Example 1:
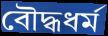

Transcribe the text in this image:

বৌদ্ধধর্ম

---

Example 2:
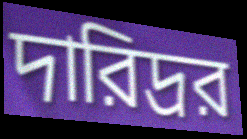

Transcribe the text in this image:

দারিদ্রর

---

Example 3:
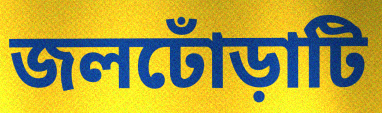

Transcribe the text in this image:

জলঢোঁড়াটি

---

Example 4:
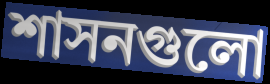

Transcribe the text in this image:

শাসনগুলো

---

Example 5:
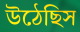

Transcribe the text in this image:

উঠেছিস